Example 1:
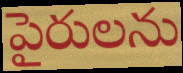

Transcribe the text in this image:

పైరులను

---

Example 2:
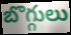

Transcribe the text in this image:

బొగ్గులు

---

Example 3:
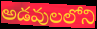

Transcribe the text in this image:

అడవులలోని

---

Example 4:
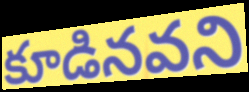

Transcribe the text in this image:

కూడినవని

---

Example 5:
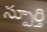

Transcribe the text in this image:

స్పూర్తి